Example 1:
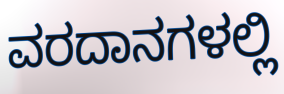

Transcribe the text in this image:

ವರದಾನಗಳಲ್ಲಿ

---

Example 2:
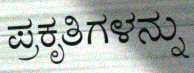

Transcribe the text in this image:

ಪ್ರಕೃತಿಗಳನ್ನು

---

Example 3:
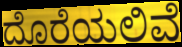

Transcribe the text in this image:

ದೊರೆಯಲಿವೆ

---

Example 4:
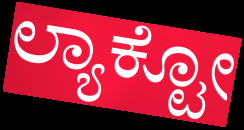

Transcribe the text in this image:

ಲ್ಯಾಕ್ಟೋ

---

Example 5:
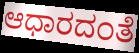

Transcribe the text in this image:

ಆಧಾರದಂತೆ